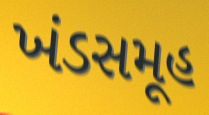
ખંડસમૂહ